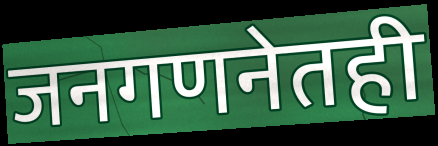
जनगणनेतही